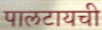
पालटायची